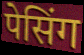
पेसिंग